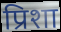
प्रिशा